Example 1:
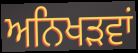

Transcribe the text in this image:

ਅਨਿਖੜਵਾਂ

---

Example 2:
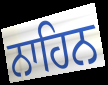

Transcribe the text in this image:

ਨਾਹਿਨ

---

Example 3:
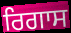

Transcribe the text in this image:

ਰਿਗਾਸ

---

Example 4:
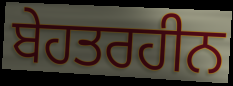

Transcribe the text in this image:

ਬੇਹਤਰਹੀਨ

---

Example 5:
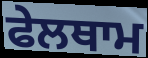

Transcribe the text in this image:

ਫੇਲਥਾਮ